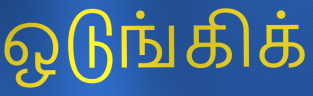
ஒடுங்கிக்